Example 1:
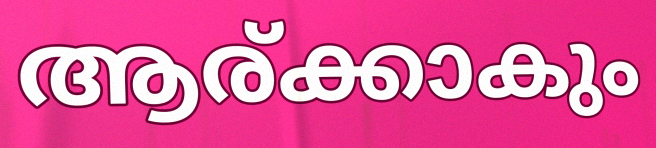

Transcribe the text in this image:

ആര്ക്കാകും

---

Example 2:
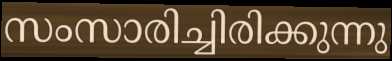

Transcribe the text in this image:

സംസാരിച്ചിരിക്കുന്നു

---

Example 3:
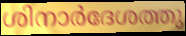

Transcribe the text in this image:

ശിനാർദേശത്തു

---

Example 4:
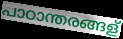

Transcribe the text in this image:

പാഠാന്തരങ്ങള്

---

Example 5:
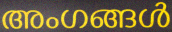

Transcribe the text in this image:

അംഗങ്ങൾ